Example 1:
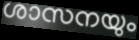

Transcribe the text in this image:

ശാസനയും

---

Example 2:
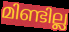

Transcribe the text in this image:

മിണ്ടില്ല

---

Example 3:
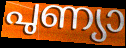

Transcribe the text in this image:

പുണ്യാ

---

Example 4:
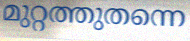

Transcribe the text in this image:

മുറ്റത്തുതന്നെ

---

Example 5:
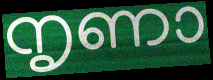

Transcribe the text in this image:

നൃണാ